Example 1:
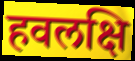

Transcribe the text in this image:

हवलक्षि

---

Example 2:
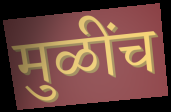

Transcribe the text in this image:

मुळींच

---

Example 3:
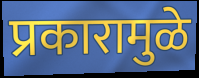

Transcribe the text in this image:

प्रकारामुळे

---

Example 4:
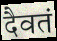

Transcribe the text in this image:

दैवतं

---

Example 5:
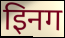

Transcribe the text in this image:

इिनग